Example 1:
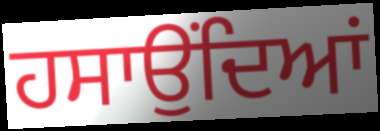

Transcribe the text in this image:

ਹਸਾਉਂਦਿਆਂ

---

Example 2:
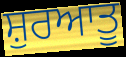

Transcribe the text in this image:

ਸ਼ੁਰਆਤੂ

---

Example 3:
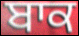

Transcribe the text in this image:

ਬਾਕ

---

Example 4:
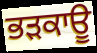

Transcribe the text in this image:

ਭੜਕਾਊ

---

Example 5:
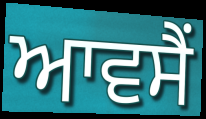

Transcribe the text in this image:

ਆਵਸੈਂ